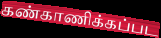
கண்காணிக்கப்பட